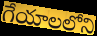
గేయాలలోని